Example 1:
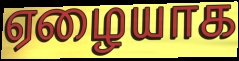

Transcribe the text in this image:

ஏழையாக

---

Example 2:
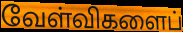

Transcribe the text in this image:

வேள்விகளைப்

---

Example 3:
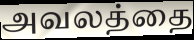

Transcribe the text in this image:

அவலத்தை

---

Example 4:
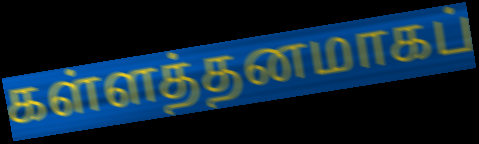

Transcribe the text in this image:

கள்ளத்தனமாகப்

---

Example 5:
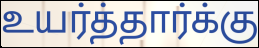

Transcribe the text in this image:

உயர்த்தார்க்கு